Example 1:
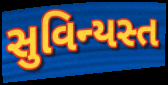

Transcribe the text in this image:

સુવિન્યસ્ત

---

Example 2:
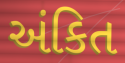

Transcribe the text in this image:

અંકિત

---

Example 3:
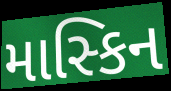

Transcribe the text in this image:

માસ્કિન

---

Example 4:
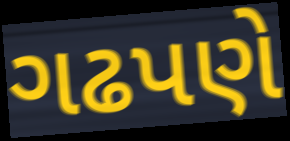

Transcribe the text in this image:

ગઢપણે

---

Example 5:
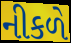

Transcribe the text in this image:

નીકળે